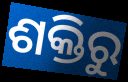
ଶକ୍ତିରୁ